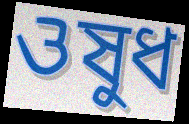
ওষুধ